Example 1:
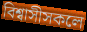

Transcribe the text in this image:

বিশ্বাসীসকলে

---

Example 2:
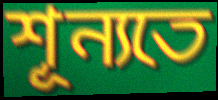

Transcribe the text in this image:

শূন্যতে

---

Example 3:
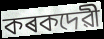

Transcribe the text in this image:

কৰকদেৱী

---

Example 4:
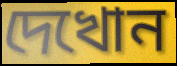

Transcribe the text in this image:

দেখোন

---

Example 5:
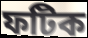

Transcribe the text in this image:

ফটিক